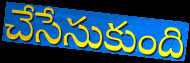
చేసేసుకుంది